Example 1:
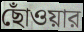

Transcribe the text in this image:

ছোঁওয়ার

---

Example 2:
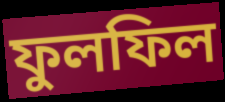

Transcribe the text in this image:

ফুলফিল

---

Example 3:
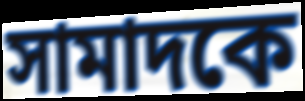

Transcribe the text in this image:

সামাদকে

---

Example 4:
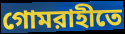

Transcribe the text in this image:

গোমরাহীতে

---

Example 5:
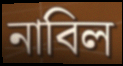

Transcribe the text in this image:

নাবিল